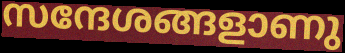
സന്ദേശങ്ങളാണു